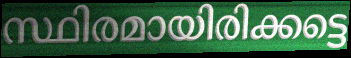
സ്ഥിരമായിരിക്കട്ടെ